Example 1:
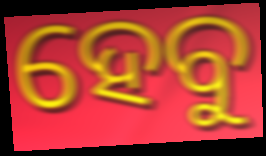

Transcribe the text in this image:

ହେବୁ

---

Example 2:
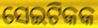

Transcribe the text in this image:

ସେଇଟିକକ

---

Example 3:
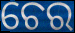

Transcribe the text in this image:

ଚେର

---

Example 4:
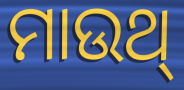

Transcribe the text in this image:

ମାଉଥ୍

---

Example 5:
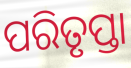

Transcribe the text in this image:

ପରିତୃପ୍ତା